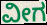
ವೀಗ